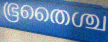
ഭൂതൈശ്ച